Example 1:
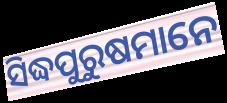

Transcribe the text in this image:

ସିଦ୍ଧପୁରୁଷମାନେ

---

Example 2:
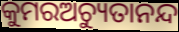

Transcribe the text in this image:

କୁମରଅଚ୍ୟୁତାନନ୍ଦ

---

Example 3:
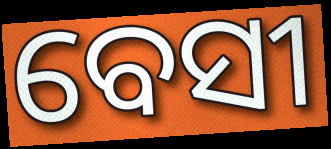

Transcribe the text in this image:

ବେସୀ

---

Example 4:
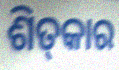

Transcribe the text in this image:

ଶିତ୍‍କାର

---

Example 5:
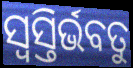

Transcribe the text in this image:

ସ୍ୱସ୍ତିର୍ଭବତୁ